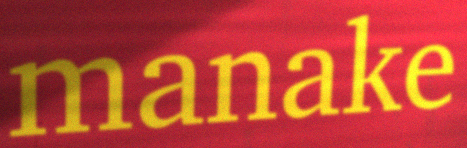
manake